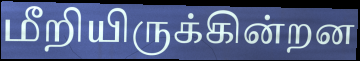
மீறியிருக்கின்றன